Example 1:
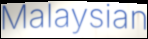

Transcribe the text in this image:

Malaysian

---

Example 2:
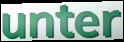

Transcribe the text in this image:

unter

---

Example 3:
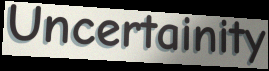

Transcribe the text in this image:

Uncertainity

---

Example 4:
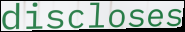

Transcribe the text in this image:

discloses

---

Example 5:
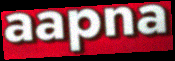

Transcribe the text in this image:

aapna